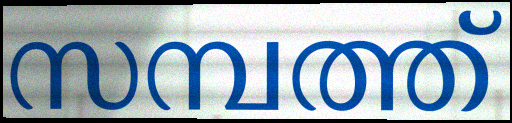
സമ്പത്ത്